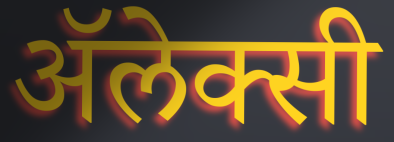
ॲलेक्सी